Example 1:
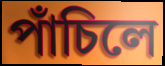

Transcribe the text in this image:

পাঁচিলে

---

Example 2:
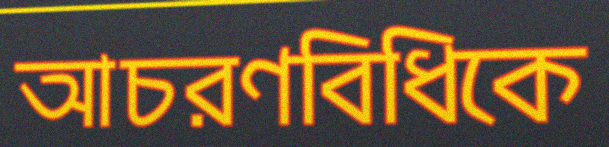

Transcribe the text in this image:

আচরণবিধিকে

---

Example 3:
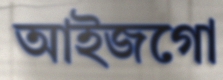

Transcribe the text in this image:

আইজগো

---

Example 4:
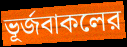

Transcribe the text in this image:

ভূর্জবাকলের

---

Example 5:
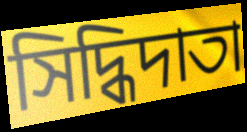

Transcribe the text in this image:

সিদ্ধিদাতা